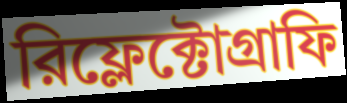
রিফ্লেক্টোগ্রাফি